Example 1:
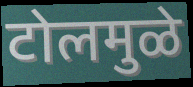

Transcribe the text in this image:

टोलमुळे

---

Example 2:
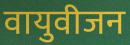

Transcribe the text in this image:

वायुवीजन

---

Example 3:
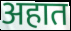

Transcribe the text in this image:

अहात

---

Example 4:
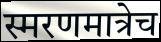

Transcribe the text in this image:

स्मरणमात्रेच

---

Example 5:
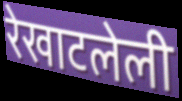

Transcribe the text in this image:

रेखाटलेली